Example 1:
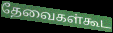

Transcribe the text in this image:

தேவைகள்கூட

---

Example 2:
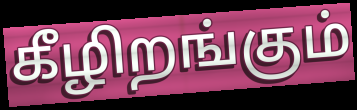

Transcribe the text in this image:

கீழிறங்கும்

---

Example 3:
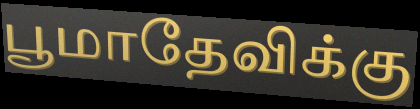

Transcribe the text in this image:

பூமாதேவிக்கு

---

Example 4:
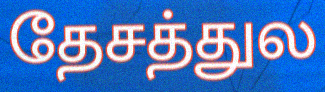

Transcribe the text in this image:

தேசத்துல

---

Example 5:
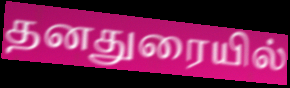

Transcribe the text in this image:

தனதுரையில்